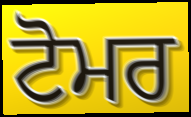
ਟੋਮਰ